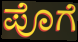
ಪೊಗೆ